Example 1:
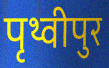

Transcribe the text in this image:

पृथ्वीपुर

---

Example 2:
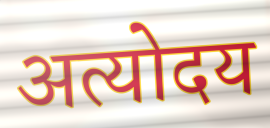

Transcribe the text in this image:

अत्योदय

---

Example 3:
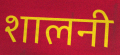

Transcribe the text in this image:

शालनी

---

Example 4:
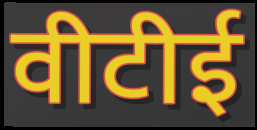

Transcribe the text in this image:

वीटीई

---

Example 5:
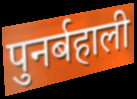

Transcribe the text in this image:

पुनर्बहाली